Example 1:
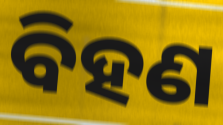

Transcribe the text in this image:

ବିହଣ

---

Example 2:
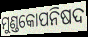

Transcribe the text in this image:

ମୁଣ୍ଡକୋପନିଷଦ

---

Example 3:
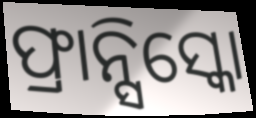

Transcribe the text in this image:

ଫ୍ରାନ୍ସିସ୍କୋ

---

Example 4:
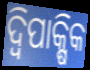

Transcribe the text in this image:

ଦ୍ବିପାକ୍ଷିକ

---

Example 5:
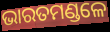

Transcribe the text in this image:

ଭାରତମଣ୍ଡଳେ